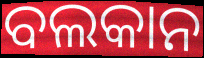
ବଲକାନ